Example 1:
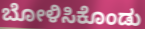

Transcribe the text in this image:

ಬೋಳಿಸಿಕೊಂಡು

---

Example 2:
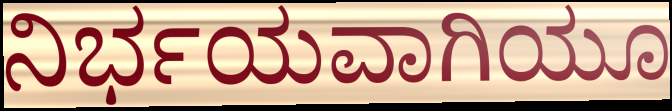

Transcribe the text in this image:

ನಿರ್ಭಯವಾಗಿಯೂ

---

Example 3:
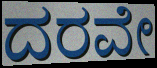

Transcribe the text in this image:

ದರವೇ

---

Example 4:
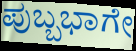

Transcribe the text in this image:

ಪುಬ್ಬಭಾಗೇ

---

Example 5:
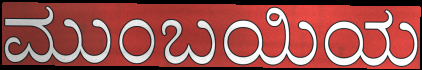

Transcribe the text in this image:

ಮುಂಬಯಿಯ